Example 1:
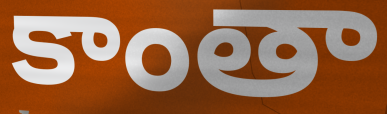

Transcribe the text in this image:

కాంతా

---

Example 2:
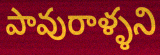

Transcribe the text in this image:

పావురాళ్ళని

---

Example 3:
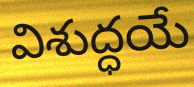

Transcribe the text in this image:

విశుద్ధయే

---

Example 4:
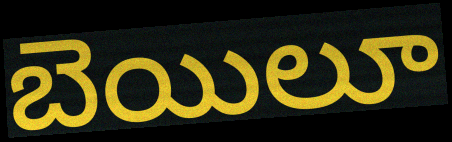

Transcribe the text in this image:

బెయిలూ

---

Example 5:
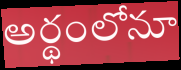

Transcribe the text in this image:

అర్థంలోనూ